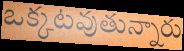
ఒక్కటవుతున్నారు